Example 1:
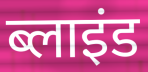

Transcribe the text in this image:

ब्लाइंड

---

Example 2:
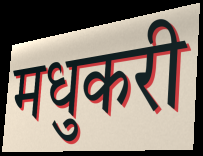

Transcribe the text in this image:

मधुकरी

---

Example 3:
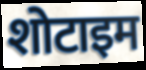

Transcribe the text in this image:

शोटाइम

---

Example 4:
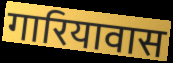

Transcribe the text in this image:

गारियावास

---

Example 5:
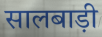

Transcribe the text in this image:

सालबाड़ी